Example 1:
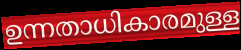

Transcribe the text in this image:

ഉന്നതാധികാരമുള്ള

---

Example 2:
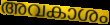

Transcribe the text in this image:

അവകാശം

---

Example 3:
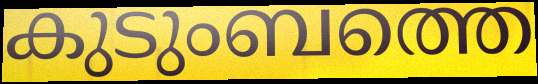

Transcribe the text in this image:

കുടുംബത്തെ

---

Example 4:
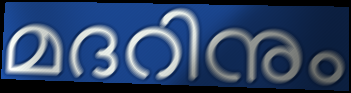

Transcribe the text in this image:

മദറിനും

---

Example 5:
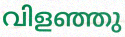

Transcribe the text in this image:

വിളഞ്ഞു